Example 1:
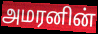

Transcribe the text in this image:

அமரனின்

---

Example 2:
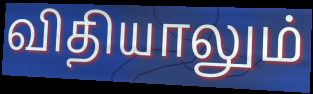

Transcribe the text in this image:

விதியாலும்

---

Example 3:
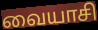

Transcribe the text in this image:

வையாசி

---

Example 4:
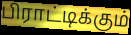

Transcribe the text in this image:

பிராட்டிக்கும்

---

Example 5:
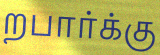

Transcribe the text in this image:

றபார்க்கு